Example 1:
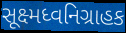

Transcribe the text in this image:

સૂક્ષ્મધ્વનિગ્રાહક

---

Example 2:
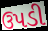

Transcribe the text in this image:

ઉપડી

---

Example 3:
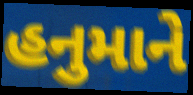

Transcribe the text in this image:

હનુમાને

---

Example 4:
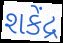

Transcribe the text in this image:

શકેંદ્ર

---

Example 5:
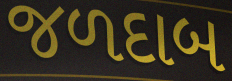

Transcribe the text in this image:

જળદાબ